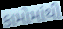
કામોમાંથી